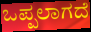
ಒಪ್ಪಲಾಗದೆ